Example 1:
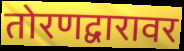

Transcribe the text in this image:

तोरणद्वारावर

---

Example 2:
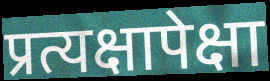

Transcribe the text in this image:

प्रत्यक्षापेक्षा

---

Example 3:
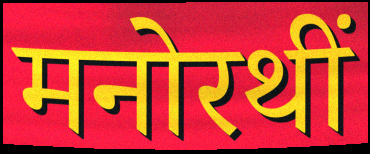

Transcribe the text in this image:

मनोरथीं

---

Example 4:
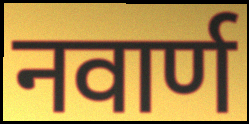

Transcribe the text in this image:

नवार्ण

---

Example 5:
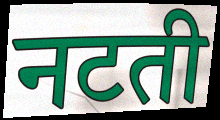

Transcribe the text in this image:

नटती